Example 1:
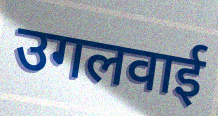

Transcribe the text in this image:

उगलवाई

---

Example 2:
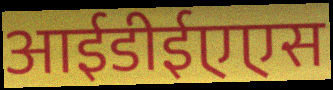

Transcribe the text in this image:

आईडीईएएस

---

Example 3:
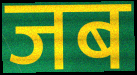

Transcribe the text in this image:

जब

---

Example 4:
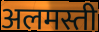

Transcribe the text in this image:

अलमस्ती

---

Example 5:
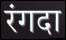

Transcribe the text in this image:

रंगदा